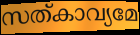
സത്കാവ്യമേ